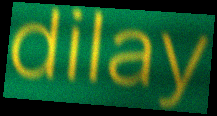
dilay